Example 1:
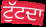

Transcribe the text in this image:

ਟੁੱਟਦਾ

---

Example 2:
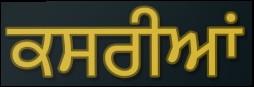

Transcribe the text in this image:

ਕਸਰੀਆਂ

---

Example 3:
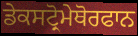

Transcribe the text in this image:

ਡੇਕਸਟ੍ਰੋਮੇਥੋਰਫਾਨ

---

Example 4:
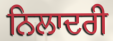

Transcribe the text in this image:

ਨਿਲਾਦਰੀ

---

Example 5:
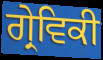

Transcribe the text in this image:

ਗ੍ਰੇਵਿਕੀ